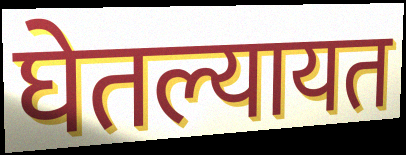
घेतल्यायत